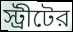
স্ট্রীটের